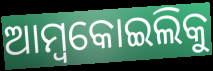
ଆମ୍ବକୋଇଲିକୁ